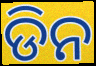
ଡିନ